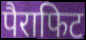
पैराफिट